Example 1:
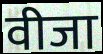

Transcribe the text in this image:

वीजा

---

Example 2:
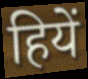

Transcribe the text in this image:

हियें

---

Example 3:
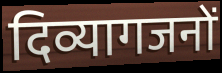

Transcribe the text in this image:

दिव्यागजनों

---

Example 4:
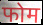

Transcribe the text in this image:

फोम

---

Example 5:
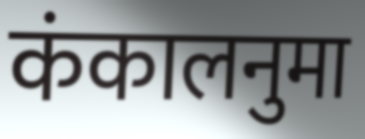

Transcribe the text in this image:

कंकालनुमा